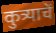
कुत्र्याचें